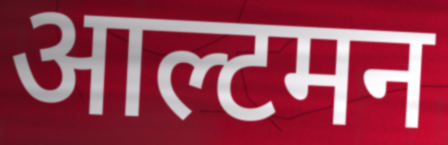
आल्टमन